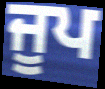
ਜੂਪ